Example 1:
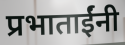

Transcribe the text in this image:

प्रभाताईंनी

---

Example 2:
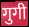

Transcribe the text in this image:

गुगी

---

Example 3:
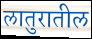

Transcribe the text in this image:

लातुरातील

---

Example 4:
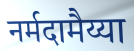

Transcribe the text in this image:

नर्मदामैय्या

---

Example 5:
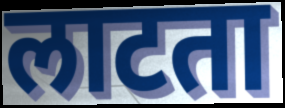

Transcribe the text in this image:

लाटता